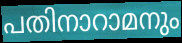
പതിനാറാമനും